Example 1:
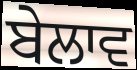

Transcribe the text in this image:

ਬੇਲਾਵ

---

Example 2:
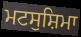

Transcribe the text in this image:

ਮਟਸੁਸ਼ਿਮਾ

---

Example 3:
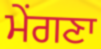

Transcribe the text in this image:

ਮੇਂਗਣਾ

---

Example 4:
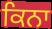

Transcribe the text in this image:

ਕਿਨਾ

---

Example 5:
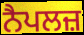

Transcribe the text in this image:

ਨੈਪਲਜ਼